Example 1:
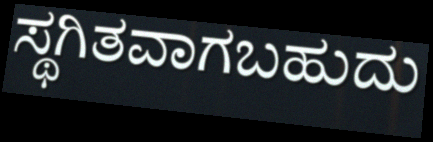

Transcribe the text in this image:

ಸ್ಥಗಿತವಾಗಬಹುದು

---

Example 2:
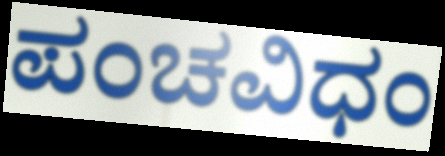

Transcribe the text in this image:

ಪಂಚವಿಧಂ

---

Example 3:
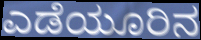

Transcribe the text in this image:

ಎಡೆಯೂರಿನ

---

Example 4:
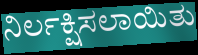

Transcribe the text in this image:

ನಿರ್ಲಕ್ಷಿಸಲಾಯಿತು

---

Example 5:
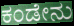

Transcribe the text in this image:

ಕಂಡೇನು